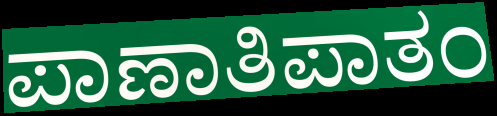
ಪಾಣಾತಿಪಾತಂ